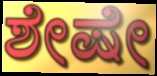
ಶೇಷೇ